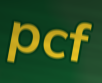
pcf